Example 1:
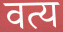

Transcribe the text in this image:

वत्य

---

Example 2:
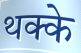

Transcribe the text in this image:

थक्के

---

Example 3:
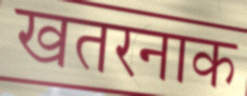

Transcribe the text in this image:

खतरनाक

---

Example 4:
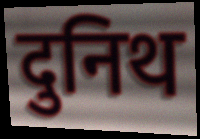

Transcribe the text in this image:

दुनिथ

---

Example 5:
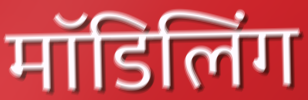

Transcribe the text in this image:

मॉडिलिंग